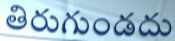
తిరుగుండదు